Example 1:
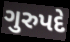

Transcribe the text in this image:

ગુરુપદે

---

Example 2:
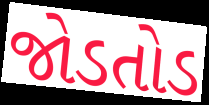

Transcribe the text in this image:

જોડતોડ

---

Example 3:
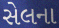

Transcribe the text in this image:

સેલના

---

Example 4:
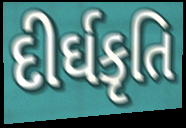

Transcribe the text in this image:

દીર્ઘકૃતિ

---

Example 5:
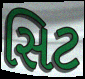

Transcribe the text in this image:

સિટ